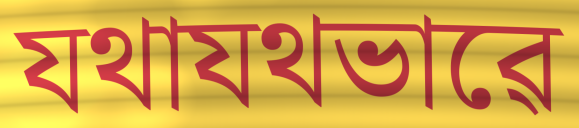
যথাযথভাৱে